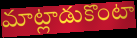
మాట్లాడుకొంటా